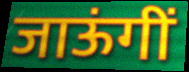
जाऊंगीं